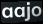
aajo